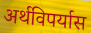
अर्थविपर्यास